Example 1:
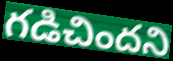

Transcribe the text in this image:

గడిచిందని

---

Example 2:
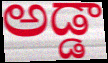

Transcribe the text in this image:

అడ్డా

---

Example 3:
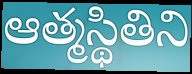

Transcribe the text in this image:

ఆత్మస్థితిని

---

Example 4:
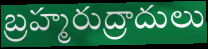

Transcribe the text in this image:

బ్రహ్మరుద్రాదులు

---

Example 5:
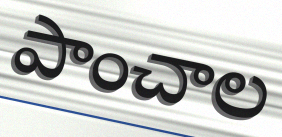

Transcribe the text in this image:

పాంచాల